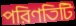
পরিণতিটি